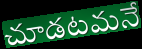
చూడటమనే